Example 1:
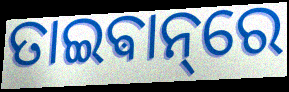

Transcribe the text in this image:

ତାଇଵାନ୍‌ରେ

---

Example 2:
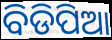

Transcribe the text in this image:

ବିଡିପିଆ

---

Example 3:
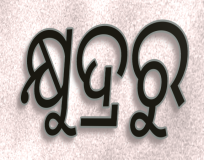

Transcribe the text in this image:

କ୍ଷୁଦ୍ରରୁ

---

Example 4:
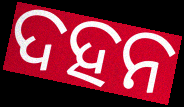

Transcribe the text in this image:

ଦହନ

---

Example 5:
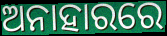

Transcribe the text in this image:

ଅନାହାରରେ